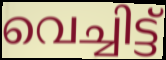
വെച്ചിട്ട്